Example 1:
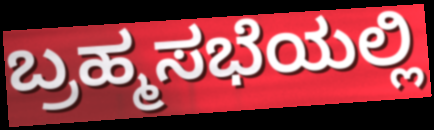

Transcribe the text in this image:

ಬ್ರಹ್ಮಸಭೆಯಲ್ಲಿ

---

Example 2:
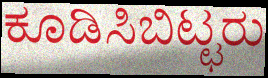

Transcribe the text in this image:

ಕೂಡಿಸಿಬಿಟ್ಟರು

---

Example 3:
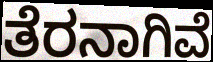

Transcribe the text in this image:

ತೆರನಾಗಿವೆ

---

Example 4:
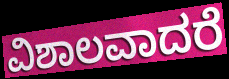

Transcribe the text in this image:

ವಿಶಾಲವಾದರೆ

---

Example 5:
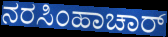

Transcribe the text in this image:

ನರಸಿಂಹಾಚಾರ್